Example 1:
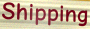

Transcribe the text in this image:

Shipping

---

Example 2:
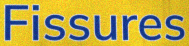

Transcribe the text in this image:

Fissures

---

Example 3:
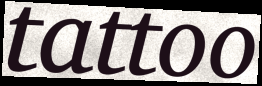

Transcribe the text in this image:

tattoo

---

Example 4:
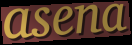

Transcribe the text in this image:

asena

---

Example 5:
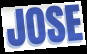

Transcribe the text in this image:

JOSE